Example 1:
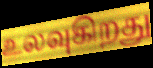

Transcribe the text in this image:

உலவுகிறது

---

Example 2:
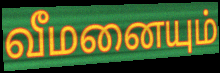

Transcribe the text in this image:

வீமனையும்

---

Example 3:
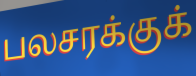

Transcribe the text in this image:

பலசரக்குக்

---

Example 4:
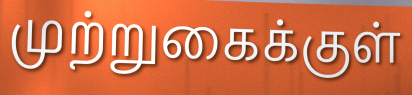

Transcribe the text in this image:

முற்றுகைக்குள்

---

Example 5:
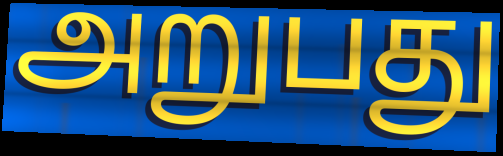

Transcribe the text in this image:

அறுபது